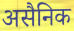
असैनिक